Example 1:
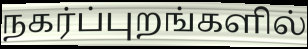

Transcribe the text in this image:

நகர்ப்புறங்களில்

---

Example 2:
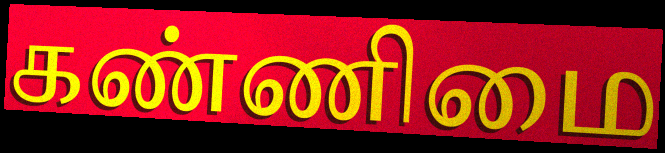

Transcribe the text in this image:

கண்ணிமை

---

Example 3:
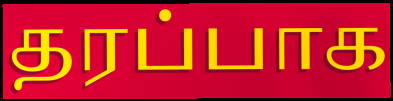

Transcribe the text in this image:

தரப்பாக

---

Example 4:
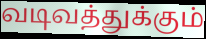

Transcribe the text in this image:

வடிவத்துக்கும்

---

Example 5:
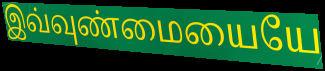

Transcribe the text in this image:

இவ்வுண்மையையே